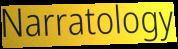
Narratology